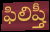
ఫిలిష్తీ